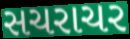
સચરાચર